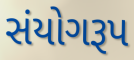
સંયોગરૂપ